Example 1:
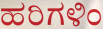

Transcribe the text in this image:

ಹರಿಗಳಿಂ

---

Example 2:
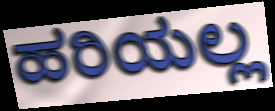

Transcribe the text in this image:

ಹರಿಯಲ್ಲ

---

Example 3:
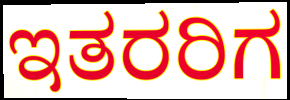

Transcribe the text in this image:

ಇತರರಿಗ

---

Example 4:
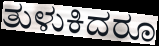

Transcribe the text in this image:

ತುಳುಕಿದರೂ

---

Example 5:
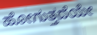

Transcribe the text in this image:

ಹೋಗುತ್ತದೆಯೇ